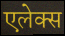
एलेक्स